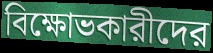
বিক্ষোভকারীদের